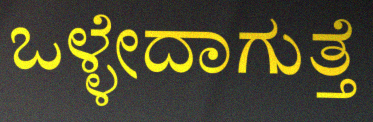
ಒಳ್ಳೇದಾಗುತ್ತೆ